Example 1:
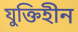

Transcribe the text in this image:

যুক্তিহীন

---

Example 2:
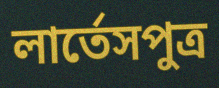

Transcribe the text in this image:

লার্তেসপুত্র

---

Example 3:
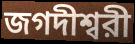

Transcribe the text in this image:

জগদীশ্বরী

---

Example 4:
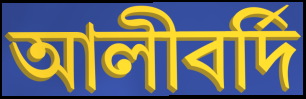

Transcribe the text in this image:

আলীবর্দি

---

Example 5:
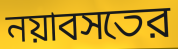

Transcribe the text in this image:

নয়াবসতের